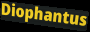
Diophantus